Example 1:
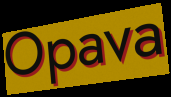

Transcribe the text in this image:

Opava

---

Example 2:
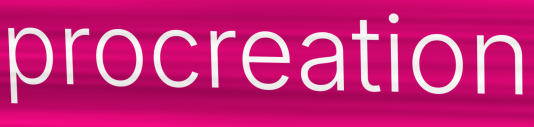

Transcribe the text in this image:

procreation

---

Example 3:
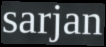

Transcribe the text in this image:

sarjan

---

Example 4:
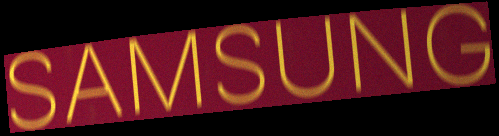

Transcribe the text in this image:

SAMSUNG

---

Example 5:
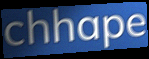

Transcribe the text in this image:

chhape